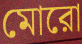
মোরো